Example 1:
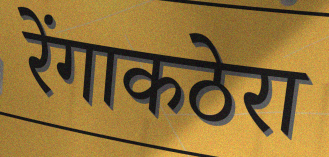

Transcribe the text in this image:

रेंगाकठेरा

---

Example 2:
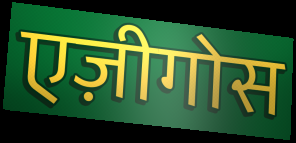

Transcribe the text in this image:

एज़ीगोस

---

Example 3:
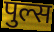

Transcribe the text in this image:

पुल्स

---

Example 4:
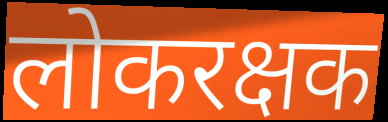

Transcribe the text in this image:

लोकरक्षक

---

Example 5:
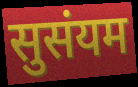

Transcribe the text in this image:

सुसंयम